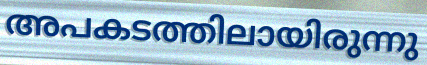
അപകടത്തിലായിരുന്നു